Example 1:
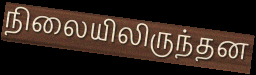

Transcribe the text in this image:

நிலையிலிருந்தன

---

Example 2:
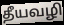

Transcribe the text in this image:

தீயவழி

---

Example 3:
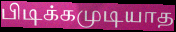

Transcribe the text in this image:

பிடிக்கமுடியாத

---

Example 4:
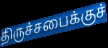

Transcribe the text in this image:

திருச்சபைக்குச்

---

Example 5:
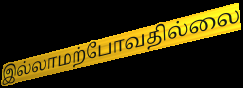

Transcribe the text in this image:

இல்லாமற்போவதில்லை